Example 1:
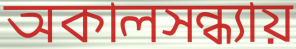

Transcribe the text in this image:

অকালসন্ধ্যায়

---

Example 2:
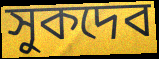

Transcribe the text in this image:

সুকদেব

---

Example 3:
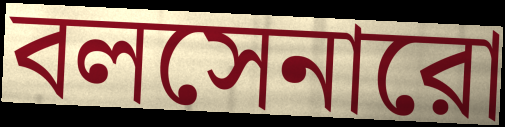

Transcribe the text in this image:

বলসেনারো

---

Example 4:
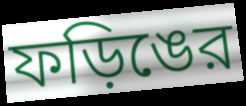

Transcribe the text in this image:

ফড়িঙের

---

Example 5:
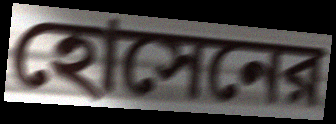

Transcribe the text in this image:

হোসেনের